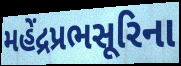
મહેંદ્રપ્રભસૂરિના